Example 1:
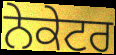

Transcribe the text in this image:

ਨੇਕੇਟਰ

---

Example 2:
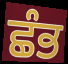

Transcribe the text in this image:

ਛੰਭ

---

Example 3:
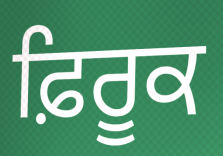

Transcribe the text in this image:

ਫ਼ਿਰੂਕ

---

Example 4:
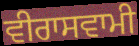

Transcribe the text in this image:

ਵੀਰਾਸਵਾਮੀ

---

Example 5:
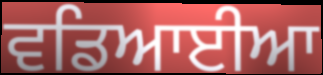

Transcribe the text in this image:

ਵਡਿਆਈਆ